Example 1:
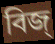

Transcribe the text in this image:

বিজ্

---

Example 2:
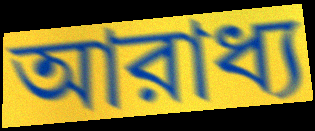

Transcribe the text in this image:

আরাধ্য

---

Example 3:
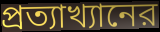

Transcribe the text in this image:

প্রত্যাখ্যানের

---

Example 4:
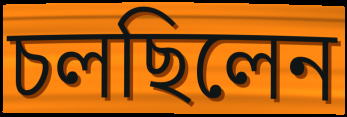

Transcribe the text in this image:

চলছিলেন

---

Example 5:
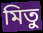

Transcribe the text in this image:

মিতু